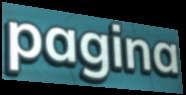
pagina